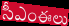
సీఎంఈలు